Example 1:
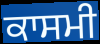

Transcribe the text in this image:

ਕਾਸਮੀ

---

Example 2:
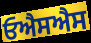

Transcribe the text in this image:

ਓਐਸਐਸ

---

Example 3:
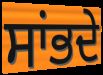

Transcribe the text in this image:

ਸਾਂਭਦੇ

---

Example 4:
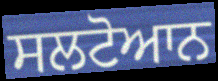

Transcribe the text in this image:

ਸਲਟੋਆਨ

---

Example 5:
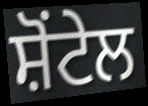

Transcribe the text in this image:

ਸ਼ੋਂਟੇਲ